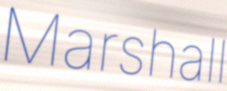
Marshall